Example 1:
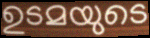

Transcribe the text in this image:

ഉടമയുടെ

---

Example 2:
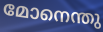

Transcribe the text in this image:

മോനെന്തു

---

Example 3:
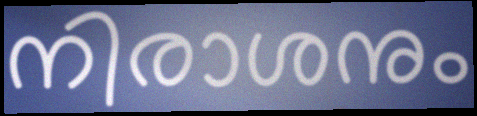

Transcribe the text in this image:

നിരാശനും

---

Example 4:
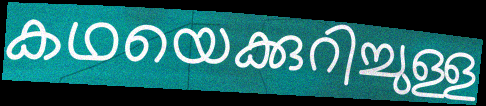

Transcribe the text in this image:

കഥയെക്കുറിച്ചുള്ള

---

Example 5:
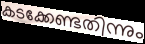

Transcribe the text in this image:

കടക്കേണ്ടതിന്നും